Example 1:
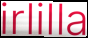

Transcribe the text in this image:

irlilla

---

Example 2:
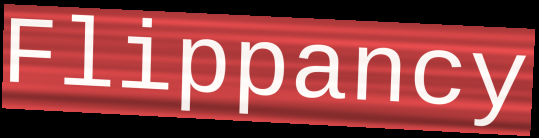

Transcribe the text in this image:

Flippancy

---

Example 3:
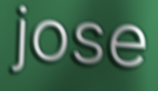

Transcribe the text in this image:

jose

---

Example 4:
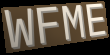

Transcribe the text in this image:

WFME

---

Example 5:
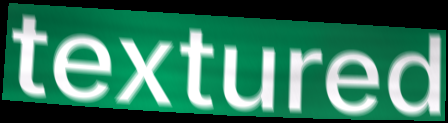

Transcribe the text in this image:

textured